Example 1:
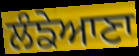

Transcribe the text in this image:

ਲੰਙੇਆਣਾ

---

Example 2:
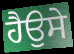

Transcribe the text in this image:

ਹੈਉਸੇ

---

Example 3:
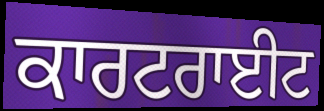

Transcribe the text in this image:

ਕਾਰਟਰਾਈਟ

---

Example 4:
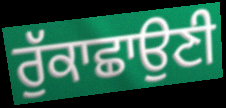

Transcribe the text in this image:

ਰੁੱਕਾਛਾਉਣੀ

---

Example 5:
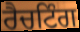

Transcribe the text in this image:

ਰੈਚਟਿੰਗ